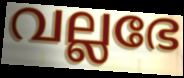
വല്ലഭേ